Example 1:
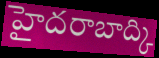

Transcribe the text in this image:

హైదరాబాద్కి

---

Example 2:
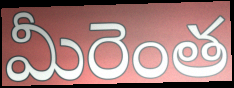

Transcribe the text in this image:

మీరెంత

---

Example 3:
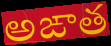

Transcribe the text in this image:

అఙాత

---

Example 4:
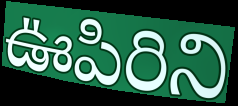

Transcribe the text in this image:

ఊపిరిని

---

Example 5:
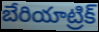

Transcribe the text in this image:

బేరియాట్రిక్